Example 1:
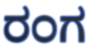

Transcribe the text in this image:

ರಂಗ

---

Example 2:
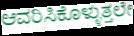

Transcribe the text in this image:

ಆವರಿಸಿಕೊಳ್ಳುತ್ತಲೇ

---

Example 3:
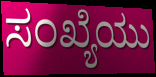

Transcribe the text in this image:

ಸಂಖ್ಯೆಯು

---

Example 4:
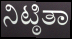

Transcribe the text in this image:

ನಿಟ್ಠಿತಾ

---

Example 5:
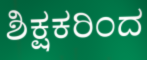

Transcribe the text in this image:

ಶಿಕ್ಷಕರಿಂದ